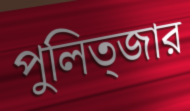
পুলিত্জার